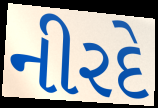
નીરદે